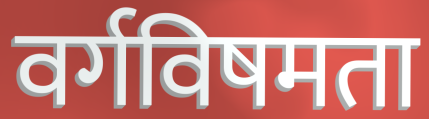
वर्गविषमता